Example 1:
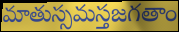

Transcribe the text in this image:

మాతుస్సమస్తజగతాం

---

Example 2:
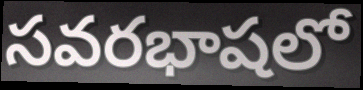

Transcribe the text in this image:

సవరభాషలో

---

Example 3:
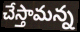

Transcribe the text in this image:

చేస్తామన్న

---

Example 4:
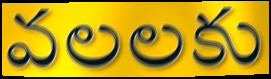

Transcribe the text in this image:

వలలకు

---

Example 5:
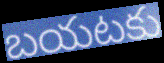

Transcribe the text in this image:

బయటకు